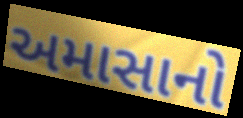
અમાસાનો